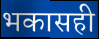
भकासही